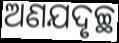
ଅଣଯଦୃଚ୍ଛ